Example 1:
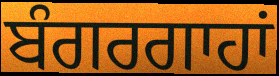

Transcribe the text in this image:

ਬੰਗਰਗਾਹਾਂ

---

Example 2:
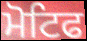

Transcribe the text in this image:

ਮੋਟਿਫ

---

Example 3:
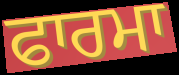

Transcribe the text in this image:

ਫਾਰਮਾ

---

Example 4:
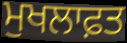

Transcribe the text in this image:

ਮੁਖਲਾਫ਼ਤ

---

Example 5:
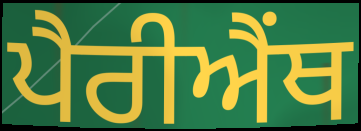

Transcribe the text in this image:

ਪੈਰੀਐਂਥ